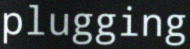
plugging